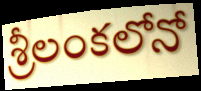
శ్రీలంకలోనో